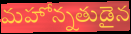
మహోన్నతుడైన